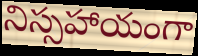
నిస్సహాయంగా